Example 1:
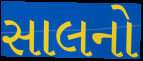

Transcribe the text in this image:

સાલનો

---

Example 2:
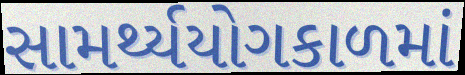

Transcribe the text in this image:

સામર્થ્યયોગકાળમાં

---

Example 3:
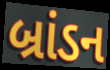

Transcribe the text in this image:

બ્રાંડન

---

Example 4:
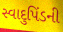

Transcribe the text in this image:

સ્વાદુપિંડની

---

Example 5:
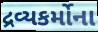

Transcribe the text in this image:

દ્રવ્યકર્મોના